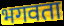
भगवता